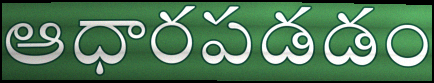
ఆధారపడడం